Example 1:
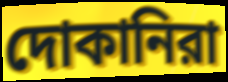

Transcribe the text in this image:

দোকানিরা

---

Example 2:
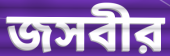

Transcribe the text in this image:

জসবীর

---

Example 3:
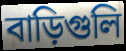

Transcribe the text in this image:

বাড়িগুলি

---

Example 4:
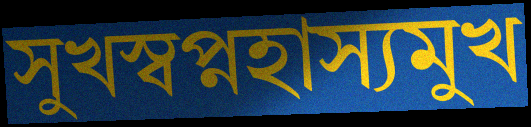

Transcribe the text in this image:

সুখস্বপ্নহাস্যমুখ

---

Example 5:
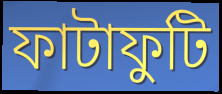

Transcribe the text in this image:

ফাটাফুটি